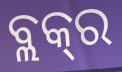
ବ୍ଲକ୍‍ର